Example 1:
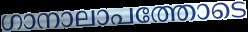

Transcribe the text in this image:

ഗാനാലാപത്തോടെ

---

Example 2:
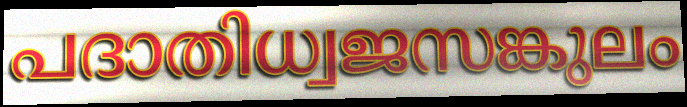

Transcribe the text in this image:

പദാതിധ്വജസങ്കുലം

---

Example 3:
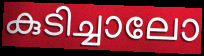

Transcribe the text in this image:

കുടിച്ചാലോ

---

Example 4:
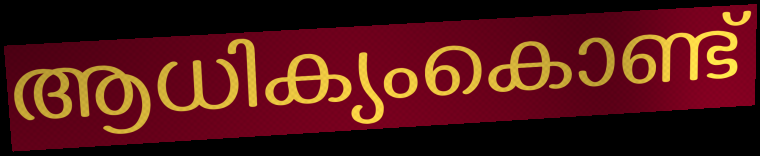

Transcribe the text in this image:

ആധിക്യംകൊണ്ട്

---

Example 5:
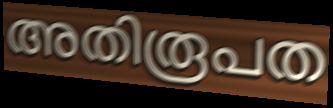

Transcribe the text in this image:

അതിരൂപത